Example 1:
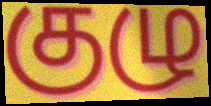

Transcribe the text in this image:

குழு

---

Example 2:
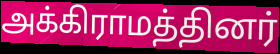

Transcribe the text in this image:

அக்கிராமத்தினர்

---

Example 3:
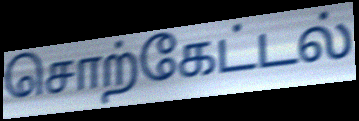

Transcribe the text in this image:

சொற்கேட்டல்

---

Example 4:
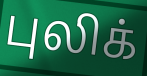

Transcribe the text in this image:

புலிக்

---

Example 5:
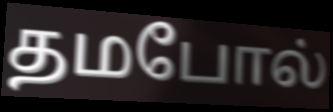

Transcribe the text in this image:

தமபோல்